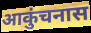
आकुंचनास